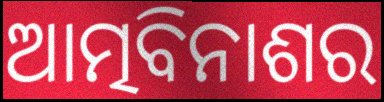
ଆତ୍ମବିନାଶର